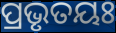
ପ୍ରଭୃତୟଃ